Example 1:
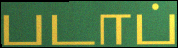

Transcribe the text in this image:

படாப்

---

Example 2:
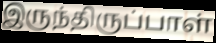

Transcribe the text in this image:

இருந்திருப்பாள்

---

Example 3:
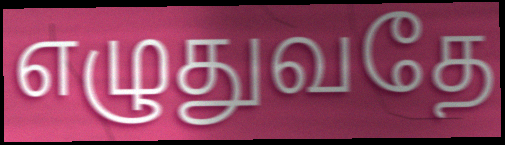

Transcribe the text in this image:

எழுதுவதே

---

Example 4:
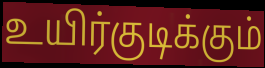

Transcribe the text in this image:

உயிர்குடிக்கும்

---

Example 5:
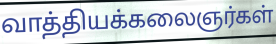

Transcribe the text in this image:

வாத்தியக்கலைஞர்கள்